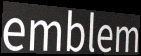
emblem